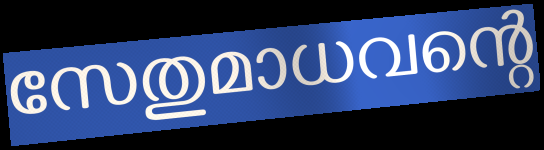
സേതുമാധവന്റെ